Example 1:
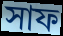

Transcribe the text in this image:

সাফ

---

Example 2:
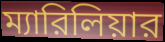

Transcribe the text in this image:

ম্যারিলিয়ার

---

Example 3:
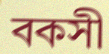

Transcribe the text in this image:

বকসী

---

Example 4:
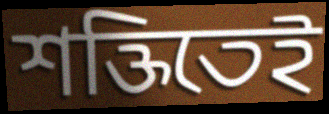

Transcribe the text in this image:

শক্তিতেই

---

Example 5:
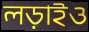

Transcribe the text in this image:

লড়াইও